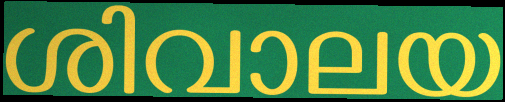
ശിവാലയ